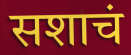
सशाचं